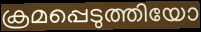
ക്രമപ്പെടുത്തിയോ